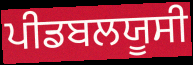
ਪੀਡਬਲਯੂਸੀ